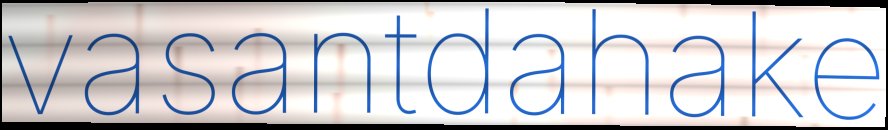
vasantdahake